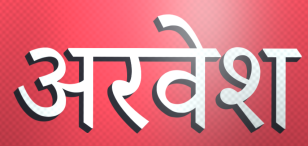
अरवेश